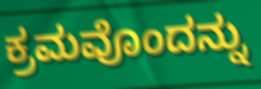
ಕ್ರಮವೊಂದನ್ನು